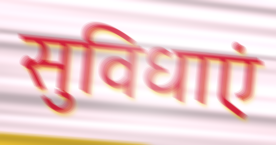
सुविधाएं